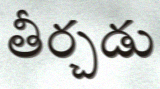
తీర్చడు